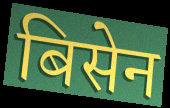
बिसेन